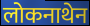
लोकनाथेन